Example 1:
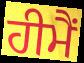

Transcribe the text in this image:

ਹੀਮੈਂ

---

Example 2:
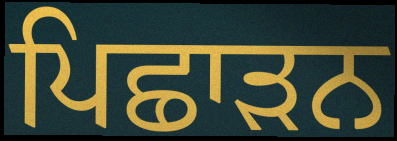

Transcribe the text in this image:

ਪਿਛਾੜਨ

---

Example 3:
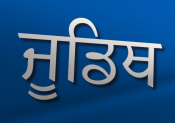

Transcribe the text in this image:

ਜੂਡਿਥ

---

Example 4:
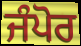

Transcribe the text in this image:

ਜੰਪੋਰ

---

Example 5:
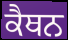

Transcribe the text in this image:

ਕੈਥਨ